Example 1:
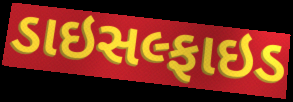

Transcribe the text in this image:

ડાઇસલ્ફાઇડ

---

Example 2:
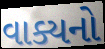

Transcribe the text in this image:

વાક્યનો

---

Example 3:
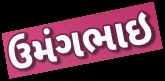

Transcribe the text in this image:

ઉમંગભાઇ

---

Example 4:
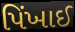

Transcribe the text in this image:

પિંખાઈ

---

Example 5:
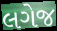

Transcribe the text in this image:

લગેજ